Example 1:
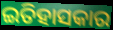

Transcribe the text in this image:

ଇତିହାସକାର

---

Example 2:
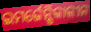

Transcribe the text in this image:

ଇମର୍ଜେନ୍ସିକାଳୀନ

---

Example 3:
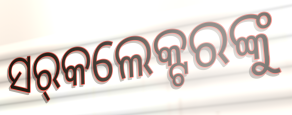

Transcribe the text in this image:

ସର୍‌କଲେକ୍ଟରଙ୍କୁ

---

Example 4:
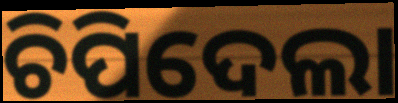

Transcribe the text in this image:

ଚିପିଦେଲା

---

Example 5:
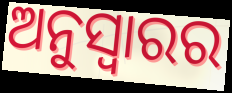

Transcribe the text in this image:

ଅନୁସ୍ଵାରର